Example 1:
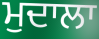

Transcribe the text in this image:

ਮੁਦਾਲਾ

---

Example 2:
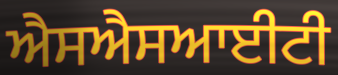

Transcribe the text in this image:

ਐਸਐਸਆਈਟੀ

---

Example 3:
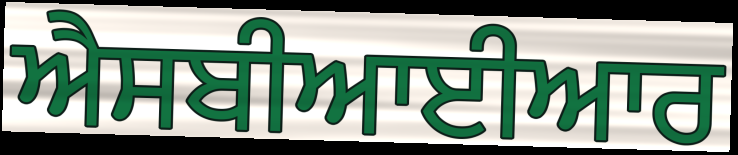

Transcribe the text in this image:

ਐਸਬੀਆਈਆਰ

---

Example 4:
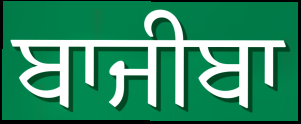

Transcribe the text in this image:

ਬਾਜੀਬਾ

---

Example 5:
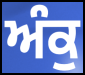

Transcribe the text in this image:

ਅੰਕੁ